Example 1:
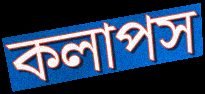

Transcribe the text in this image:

কলাপস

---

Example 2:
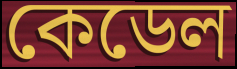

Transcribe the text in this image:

কেডেল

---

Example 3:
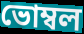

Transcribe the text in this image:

ভোম্বল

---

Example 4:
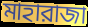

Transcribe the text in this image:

মাহারাজা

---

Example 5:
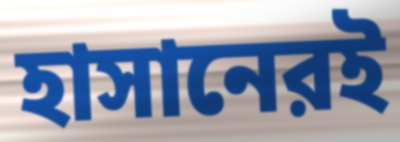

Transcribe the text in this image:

হাসানেরই